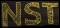
NST